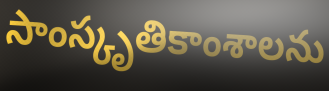
సాంస్కృతికాంశాలను